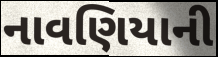
નાવણિયાની